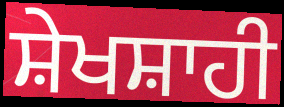
ਸ਼ੇਖਸ਼ਾਹੀ